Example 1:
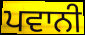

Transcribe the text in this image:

ਪਵਾਨੀ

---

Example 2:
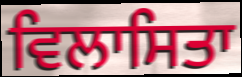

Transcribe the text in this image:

ਵਿਲਾਸਿਤਾ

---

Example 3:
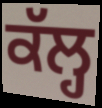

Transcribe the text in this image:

ਕੱਲ੍ਹ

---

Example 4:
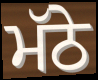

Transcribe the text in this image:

ਮੱਠੇ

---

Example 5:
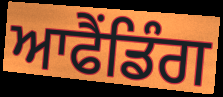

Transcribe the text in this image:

ਆਫੈਂਡਿੰਗ